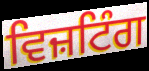
ਵਿਜ਼ਟਿੰਗ